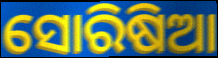
ସୋରିଷିଆ